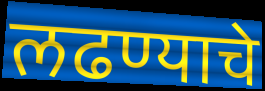
लढण्याचे